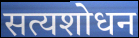
सत्यशोधन